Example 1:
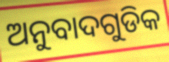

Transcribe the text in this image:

ଅନୁବାଦଗୁଡିକ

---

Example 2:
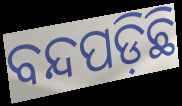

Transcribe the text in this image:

ବନ୍ଦପଡ଼ିଛି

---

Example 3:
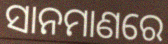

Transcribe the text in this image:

ସାନମାଣରେ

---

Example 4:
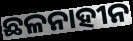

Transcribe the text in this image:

ଛଳନାହୀନ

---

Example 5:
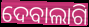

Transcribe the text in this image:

ଦେବାଲାଗି